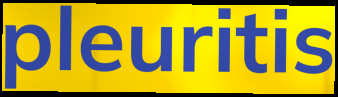
pleuritis